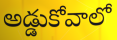
అడ్డుకోవాలో